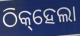
ଠିକ୍‌ହେଲା